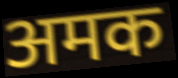
अमक